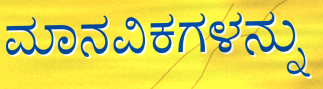
ಮಾನವಿಕಗಳನ್ನು